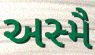
અસ્મૈ